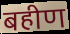
बहीण